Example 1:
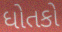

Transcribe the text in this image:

ધોતકો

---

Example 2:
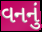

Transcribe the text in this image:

વનનું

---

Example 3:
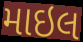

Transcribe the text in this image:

માઇલ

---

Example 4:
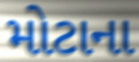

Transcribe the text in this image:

મોટાના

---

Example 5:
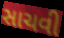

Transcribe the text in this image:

સાચવી